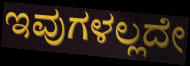
ಇವುಗಳಲ್ಲದೇ